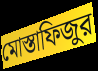
মোস্তাফিজুর